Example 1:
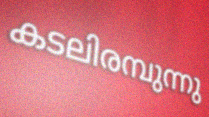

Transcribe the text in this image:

കടലിരമ്പുന്നു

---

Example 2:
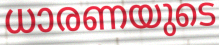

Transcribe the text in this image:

ധാരണയുടെ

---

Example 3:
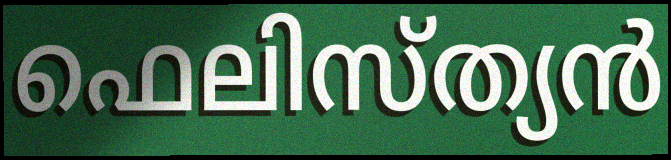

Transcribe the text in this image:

ഫെലിസ്ത്യൻ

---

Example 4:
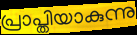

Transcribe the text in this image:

പ്രാപ്തിയാകുന്നു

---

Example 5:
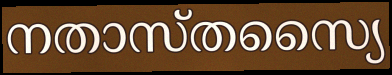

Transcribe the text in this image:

നതാസ്തസ്യൈ